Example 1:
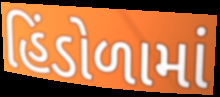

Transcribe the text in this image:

હિંડોળામાં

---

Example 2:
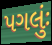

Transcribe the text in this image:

પગલુંઃ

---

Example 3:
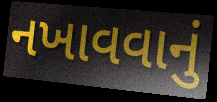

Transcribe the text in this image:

નખાવવાનું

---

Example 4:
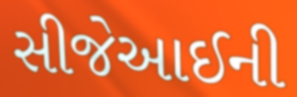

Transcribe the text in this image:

સીજેઆઈની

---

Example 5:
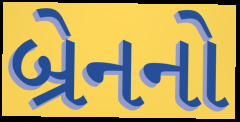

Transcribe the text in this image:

બ્રેનનો